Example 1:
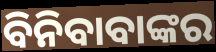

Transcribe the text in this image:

ବିନିବାବାଙ୍କର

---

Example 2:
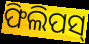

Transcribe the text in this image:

ଫିଲିପସ୍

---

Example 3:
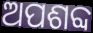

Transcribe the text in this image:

ଅପଶବ୍ଦ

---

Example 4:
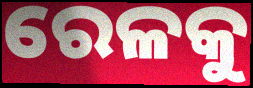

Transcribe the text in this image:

ରେଳକୁ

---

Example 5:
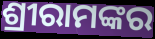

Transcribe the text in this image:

ଶ୍ରୀରାମଙ୍କର